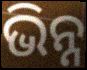
ଭିନ୍ନ